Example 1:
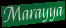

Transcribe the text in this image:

Marayya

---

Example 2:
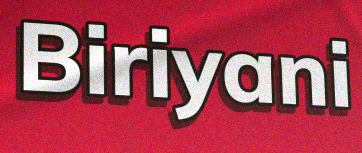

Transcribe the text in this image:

Biriyani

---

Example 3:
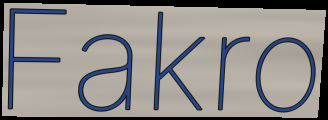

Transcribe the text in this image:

Fakro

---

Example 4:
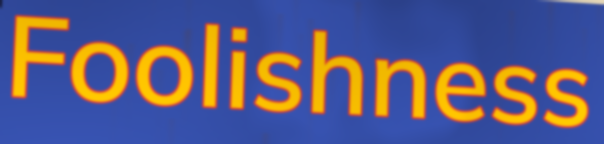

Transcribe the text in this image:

Foolishness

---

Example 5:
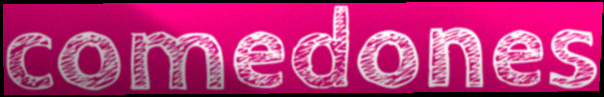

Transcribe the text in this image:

comedones